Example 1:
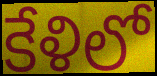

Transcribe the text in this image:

కేళిలో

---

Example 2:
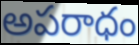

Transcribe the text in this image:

అపరాధం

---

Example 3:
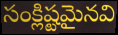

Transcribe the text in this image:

సంక్లిష్టమైనవి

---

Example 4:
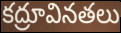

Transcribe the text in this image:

కద్రూవినతలు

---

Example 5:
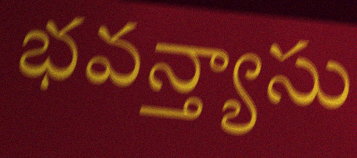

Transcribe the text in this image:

భవన్త్యాసు